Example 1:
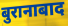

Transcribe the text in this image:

बुरानाबाद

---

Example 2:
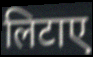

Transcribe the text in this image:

लिटाए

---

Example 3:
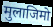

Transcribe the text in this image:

मुलाजिमो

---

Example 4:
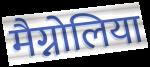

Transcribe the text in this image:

मैग्नोलिया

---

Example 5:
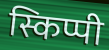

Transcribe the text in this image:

स्किप्पी